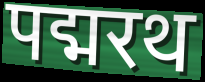
पद्मरथ